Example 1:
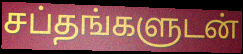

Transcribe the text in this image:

சப்தங்களுடன்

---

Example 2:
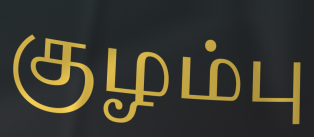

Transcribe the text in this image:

குழம்பு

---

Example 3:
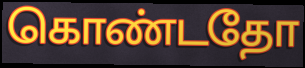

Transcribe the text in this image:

கொண்டதோ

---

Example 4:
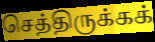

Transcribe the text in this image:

செத்திருக்கக்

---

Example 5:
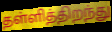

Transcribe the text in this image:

தள்ளித்திறந்து